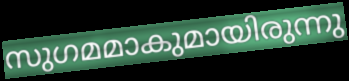
സുഗമമാകുമായിരുന്നു